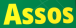
Assos